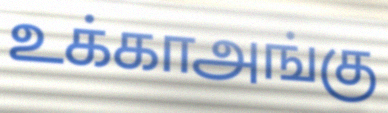
உக்காஅங்கு